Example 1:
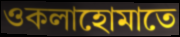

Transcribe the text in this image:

ওকলাহোমাতে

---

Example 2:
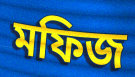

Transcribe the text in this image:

মফিজ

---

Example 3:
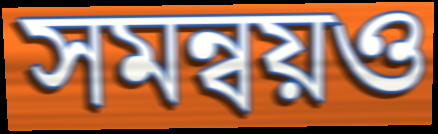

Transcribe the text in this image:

সমন্বয়ও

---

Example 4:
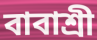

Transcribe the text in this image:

বাবাশ্রী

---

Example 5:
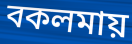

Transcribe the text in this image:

বকলমায়